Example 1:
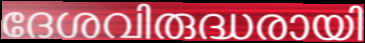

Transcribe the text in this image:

ദേശവിരുദ്ധരായി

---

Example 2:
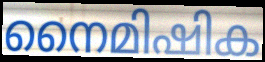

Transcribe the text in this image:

നൈമിഷിക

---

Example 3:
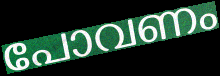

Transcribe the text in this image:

പോവണം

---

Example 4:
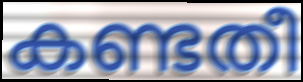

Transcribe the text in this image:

കണ്ടതീ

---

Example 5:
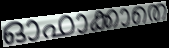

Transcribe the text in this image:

ഓഫാക്കാതെ